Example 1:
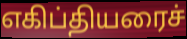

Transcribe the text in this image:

எகிப்தியரைச்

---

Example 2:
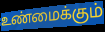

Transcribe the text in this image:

உண்மைக்கும்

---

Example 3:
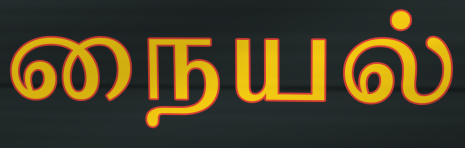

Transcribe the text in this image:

நையல்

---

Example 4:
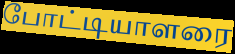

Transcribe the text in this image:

போட்டியாளரை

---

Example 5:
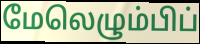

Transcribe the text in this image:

மேலெழும்பிப்